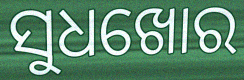
ସୁଧଖୋର